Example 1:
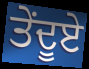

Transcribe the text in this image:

ਤੇਂਦੂਏ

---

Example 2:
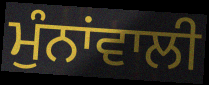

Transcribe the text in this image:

ਮੁੰਨਾਂਵਾਲੀ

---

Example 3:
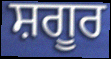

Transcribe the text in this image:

ਸ਼ਗੂਰ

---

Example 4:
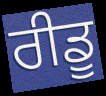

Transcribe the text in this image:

ਰੀਡੂ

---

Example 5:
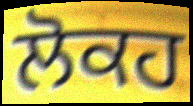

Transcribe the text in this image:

ਲੋਕਹ